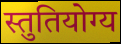
स्तुतियोग्य